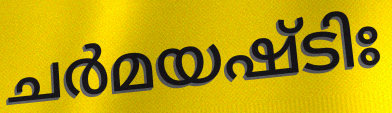
ചർമയഷ്ടിഃ